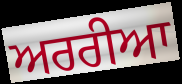
ਅਰਰੀਆ